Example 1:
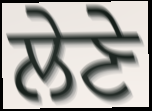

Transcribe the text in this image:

ਲੇਣੇ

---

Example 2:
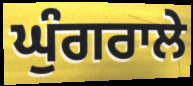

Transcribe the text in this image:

ਘੁੰਗਰਾਲੇ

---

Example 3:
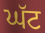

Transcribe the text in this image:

ਘੱਟ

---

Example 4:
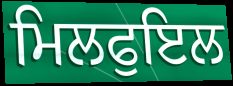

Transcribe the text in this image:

ਮਿਲਫੁਇਲ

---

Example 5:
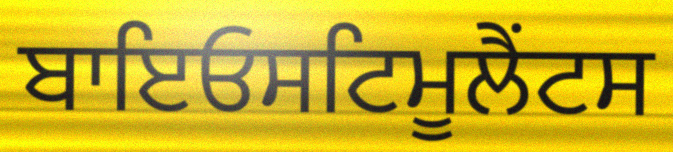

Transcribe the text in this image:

ਬਾਇਓਸਟਿਮੂਲੈਂਟਸ